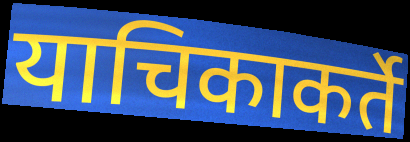
याचिकाकर्ते